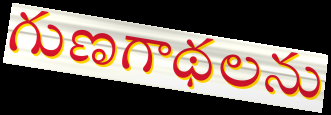
గుణగాథలను